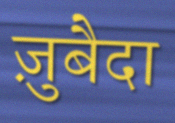
ज़ुबैदा